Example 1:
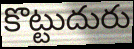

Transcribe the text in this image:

కొట్టుదురు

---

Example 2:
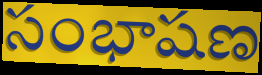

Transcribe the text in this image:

సంభాషణ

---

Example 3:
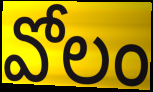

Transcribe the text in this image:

వోలం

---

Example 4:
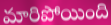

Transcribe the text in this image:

మారిపోయింది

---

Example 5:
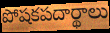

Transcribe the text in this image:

పోషకపదార్థాలు